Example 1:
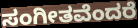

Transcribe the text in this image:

ಸಂಗೀತವೆಂದರೆ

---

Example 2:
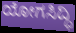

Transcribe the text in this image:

ಯೋಗಸಿದ್ಧಿ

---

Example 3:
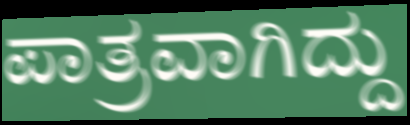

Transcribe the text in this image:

ಪಾತ್ರವಾಗಿದ್ದು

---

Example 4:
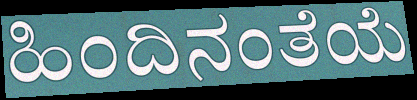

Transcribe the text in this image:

ಹಿಂದಿನಂತೆಯೆ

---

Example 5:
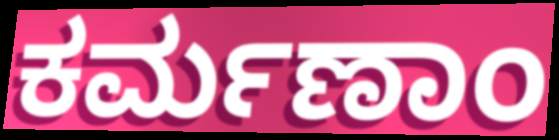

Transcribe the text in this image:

ಕರ್ಮಣಾಂ